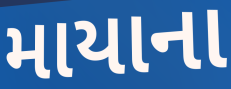
માયાના